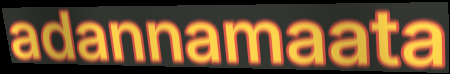
adannamaata